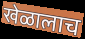
खेळालाच